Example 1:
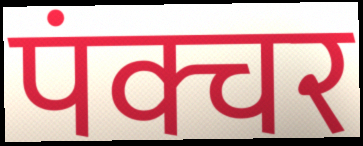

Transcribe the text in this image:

पंक्चर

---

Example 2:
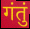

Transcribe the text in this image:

गंतुं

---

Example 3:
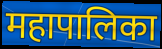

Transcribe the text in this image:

महापालिका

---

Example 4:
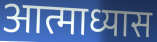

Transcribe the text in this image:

आत्माध्यास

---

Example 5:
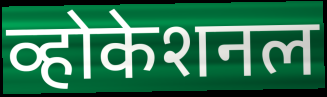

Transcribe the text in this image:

व्होकेशनल